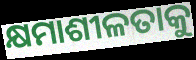
କ୍ଷମାଶୀଳତାକୁ